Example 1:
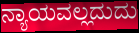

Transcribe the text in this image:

ನ್ಯಾಯವಲ್ಲದುದು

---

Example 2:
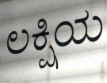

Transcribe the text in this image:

ಲಕ್ಷಿಯ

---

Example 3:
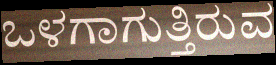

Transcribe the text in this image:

ಒಳಗಾಗುತ್ತಿರುವ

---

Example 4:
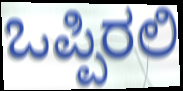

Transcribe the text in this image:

ಒಪ್ಪಿರಲಿ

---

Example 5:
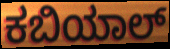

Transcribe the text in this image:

ಕಬಿಯಾಲ್